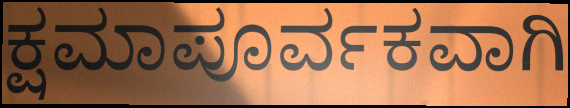
ಕ್ಷಮಾಪೂರ್ವಕವಾಗಿ